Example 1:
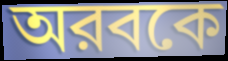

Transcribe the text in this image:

অরবকে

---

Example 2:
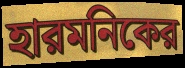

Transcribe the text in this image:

হারমনিকের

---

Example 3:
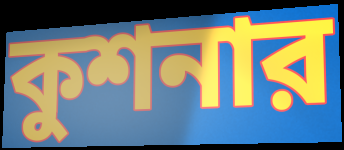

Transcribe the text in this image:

কুশনার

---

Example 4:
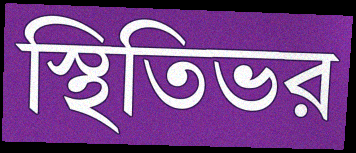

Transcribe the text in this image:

স্থিতিভর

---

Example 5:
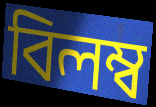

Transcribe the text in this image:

বিলম্ব